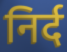
निर्द